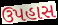
ઉપહાસ